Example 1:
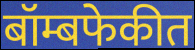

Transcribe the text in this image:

बॉम्बफेकीत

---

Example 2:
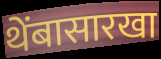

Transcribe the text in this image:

थेंबासारखा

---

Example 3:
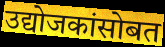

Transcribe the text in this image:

उद्योजकांसोबत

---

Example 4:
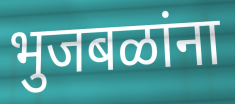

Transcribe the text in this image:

भुजबळांना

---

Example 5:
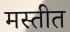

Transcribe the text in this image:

मस्तीत